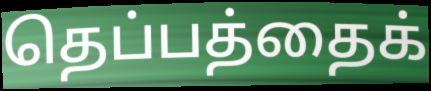
தெப்பத்தைக்